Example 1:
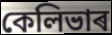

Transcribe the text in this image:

কেলিভাৰ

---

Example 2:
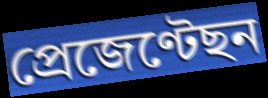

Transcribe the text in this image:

প্ৰেজেণ্টেছন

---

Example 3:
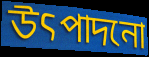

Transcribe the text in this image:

উৎপাদনো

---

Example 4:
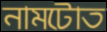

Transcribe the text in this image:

নামটোত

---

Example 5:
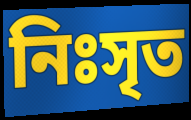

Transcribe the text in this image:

নিঃসৃত